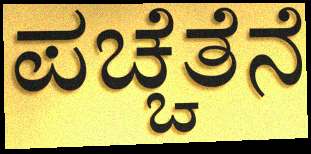
ಪಚ್ಚೆತೆನೆ